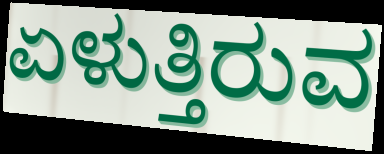
ಏಳುತ್ತಿರುವ